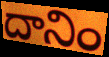
దానిం